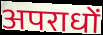
अपराधों